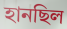
হানছিল